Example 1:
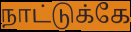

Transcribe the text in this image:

நாட்டுக்கே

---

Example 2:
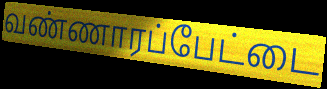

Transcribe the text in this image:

வண்ணாரப்பேட்டை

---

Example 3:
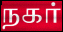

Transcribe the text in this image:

நகர்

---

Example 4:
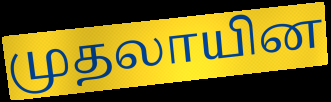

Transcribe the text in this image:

முதலாயின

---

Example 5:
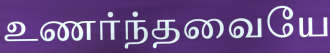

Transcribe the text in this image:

உணர்ந்தவையே